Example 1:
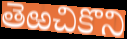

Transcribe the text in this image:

తెఱచికొని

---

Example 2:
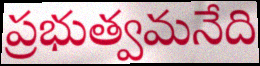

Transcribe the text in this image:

ప్రభుత్వమనేది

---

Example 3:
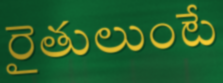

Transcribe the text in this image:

రైతులుంటే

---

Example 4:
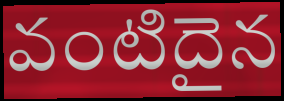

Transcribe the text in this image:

వంటిదైన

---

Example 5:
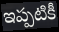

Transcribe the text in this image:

ఇప్పటికీ